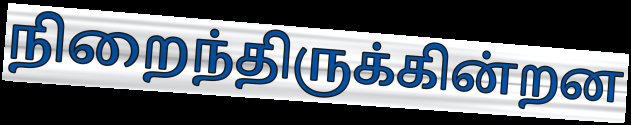
நிறைந்திருக்கின்றன